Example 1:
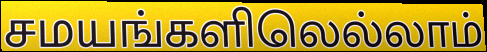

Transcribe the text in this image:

சமயங்களிலெல்லாம்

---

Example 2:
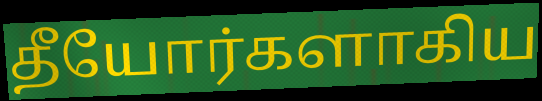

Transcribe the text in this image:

தீயோர்களாகிய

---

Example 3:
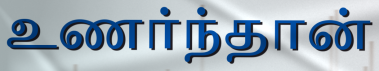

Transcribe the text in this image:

உணர்ந்தான்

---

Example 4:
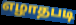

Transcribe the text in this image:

எழாதபடி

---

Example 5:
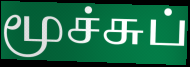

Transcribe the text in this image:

மூச்சுப்